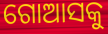
ଗୋଆସକୁ